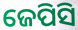
ଜେପିସି